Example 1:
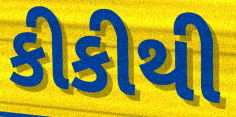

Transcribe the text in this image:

કીકીથી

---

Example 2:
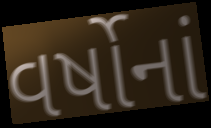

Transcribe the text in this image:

વર્ષોનાં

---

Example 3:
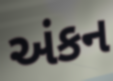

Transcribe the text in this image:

અંકન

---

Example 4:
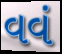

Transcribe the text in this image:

વવં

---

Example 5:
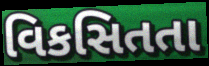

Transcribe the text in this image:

વિકસિતતા